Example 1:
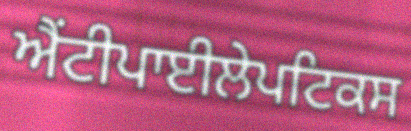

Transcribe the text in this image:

ਐਂਟੀਪਾਈਲੇਪਟਿਕਸ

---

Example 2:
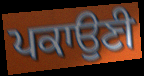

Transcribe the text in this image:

ਪਕਾਉਣੀ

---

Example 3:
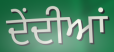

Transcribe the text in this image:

ਦੇਂਦੀਆਂ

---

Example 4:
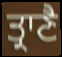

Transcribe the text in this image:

ਤ੍ਰਾਣੈ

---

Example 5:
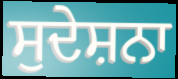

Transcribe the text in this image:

ਸੁਦੇਸ਼ਨਾ